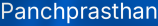
Panchprasthan